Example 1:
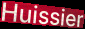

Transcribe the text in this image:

Huissier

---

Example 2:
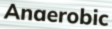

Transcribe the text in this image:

Anaerobic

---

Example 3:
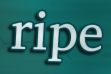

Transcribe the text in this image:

ripe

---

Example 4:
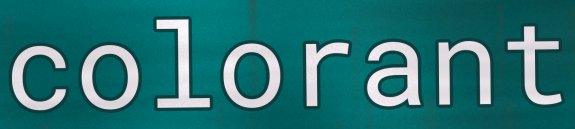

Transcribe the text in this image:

colorant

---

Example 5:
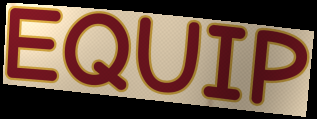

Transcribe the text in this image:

EQUIP